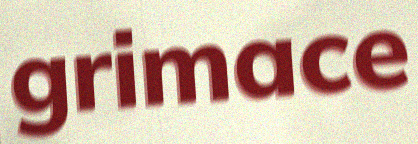
grimace